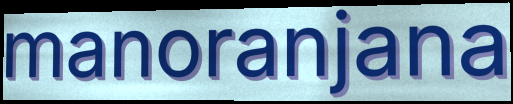
manoranjana